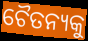
ଚୈତନ୍ୟକୁ